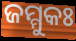
ଜମ୍ମୁକଃ